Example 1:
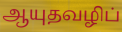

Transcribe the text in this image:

ஆயுதவழிப்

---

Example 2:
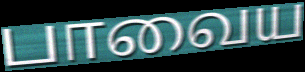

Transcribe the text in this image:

பாவைய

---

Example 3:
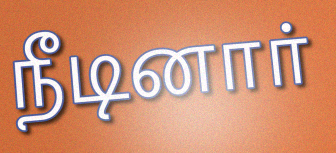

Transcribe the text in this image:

நீடினார்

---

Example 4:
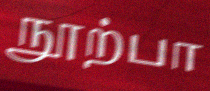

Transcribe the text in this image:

நூற்பா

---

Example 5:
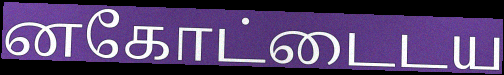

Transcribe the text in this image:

னகோட்டைடய